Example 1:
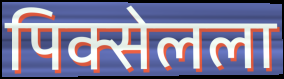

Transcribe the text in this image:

पिक्सेलला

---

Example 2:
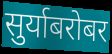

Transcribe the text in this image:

सुर्याबरोबर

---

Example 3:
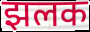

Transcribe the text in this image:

झलक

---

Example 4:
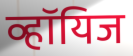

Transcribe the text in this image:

व्हॉयिज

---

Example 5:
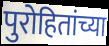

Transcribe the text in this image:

पुरोहितांच्या